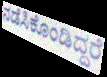
ನಡೆಸಿಕೊಂಡಿದ್ದರೆ